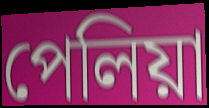
পেলিয়া